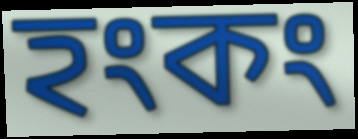
হংকং